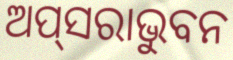
ଅପ୍‍ସରାଭୁବନ